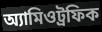
অ্যামিওট্রফিক